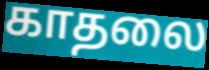
காதலை